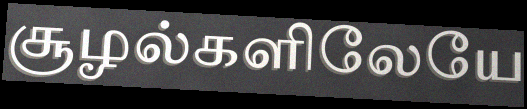
சூழல்களிலேயே